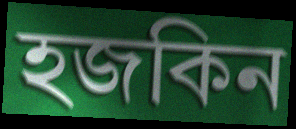
হজকিন